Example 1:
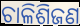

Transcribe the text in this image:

ଚାଳିଶିଜଣ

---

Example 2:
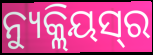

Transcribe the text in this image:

ନ୍ୟୁକ୍ଲିୟସ୍‌ର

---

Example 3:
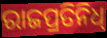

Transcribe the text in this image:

ରାଜପ୍ରତିନିଧ୍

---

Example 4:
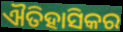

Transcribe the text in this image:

ଐତିହାସିକର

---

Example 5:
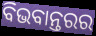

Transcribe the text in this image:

ବିଭବାନ୍ତରର